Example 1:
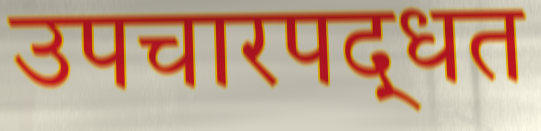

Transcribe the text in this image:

उपचारपद्धत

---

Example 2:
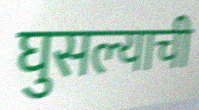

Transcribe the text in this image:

घुसल्याची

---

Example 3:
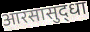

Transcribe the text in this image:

आरसासुद्धा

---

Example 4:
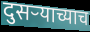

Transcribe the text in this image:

दुसऱ्याच्याच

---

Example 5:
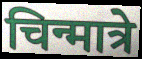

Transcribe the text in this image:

चिन्मात्रे